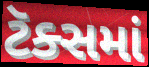
ટૅક્સમાં